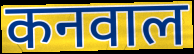
कनवाल